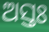
ଅସ୍ତଃ